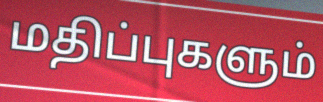
மதிப்புகளும்